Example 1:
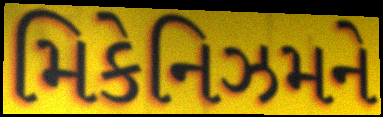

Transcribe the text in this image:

મિકેનિઝમને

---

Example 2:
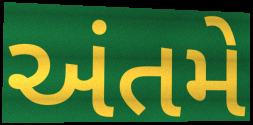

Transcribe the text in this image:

અંતમે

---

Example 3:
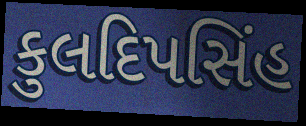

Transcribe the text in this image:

કુલદિપસિંહ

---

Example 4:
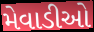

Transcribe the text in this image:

મેવાડીઓ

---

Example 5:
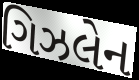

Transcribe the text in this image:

ગિઝલેન